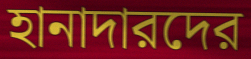
হানাদারদের